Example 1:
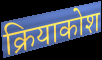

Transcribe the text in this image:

क्रियाकोश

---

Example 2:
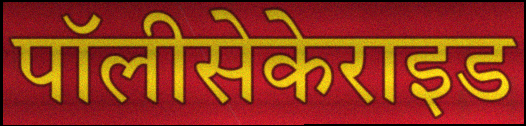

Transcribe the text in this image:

पॉलीसेकेराइड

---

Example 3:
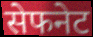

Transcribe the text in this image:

सेफनेट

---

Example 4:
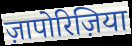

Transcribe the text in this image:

ज़ापोरिज़िया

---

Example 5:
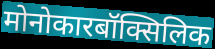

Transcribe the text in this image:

मोनोकारबॉक्सिलिक